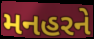
મનહરને